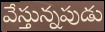
వేస్తున్నపుడు